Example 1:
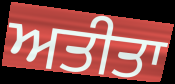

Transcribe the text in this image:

ਅਤੀਤਾ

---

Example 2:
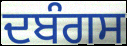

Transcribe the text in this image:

ਦਬੰਗਸ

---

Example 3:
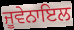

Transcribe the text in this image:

ਜੂਵੇਨਾਇਲ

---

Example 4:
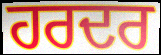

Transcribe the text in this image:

ਹਰਦਰ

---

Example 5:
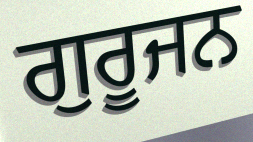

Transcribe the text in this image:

ਗੁਰੂਜਨ